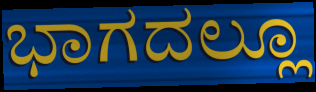
ಭಾಗದಲ್ಲೂ